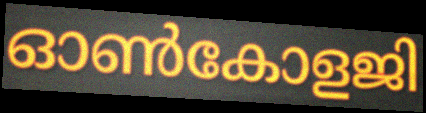
ഓൺകോളജി